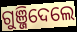
ଗୁଞ୍ଜିଦେଲେ